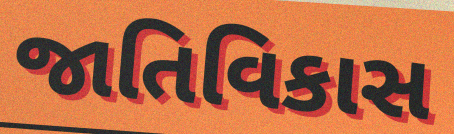
જાતિવિકાસ